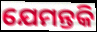
ଯେମନ୍ତକି